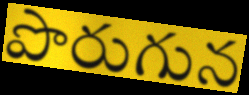
పొరుగున